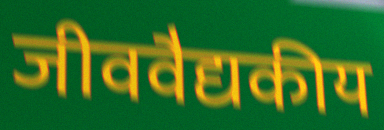
जीववैद्यकीय